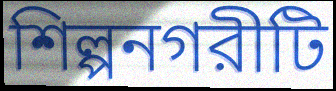
শিল্পনগরীটি